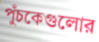
পুঁচকেগুলোর